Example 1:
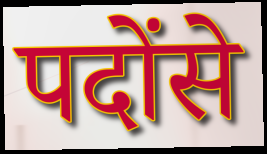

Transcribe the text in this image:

पदोंसे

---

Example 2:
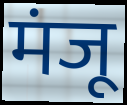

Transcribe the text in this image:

मंजू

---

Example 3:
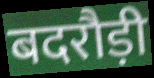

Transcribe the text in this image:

बदरौड़ी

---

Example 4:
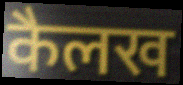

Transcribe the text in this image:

कैलख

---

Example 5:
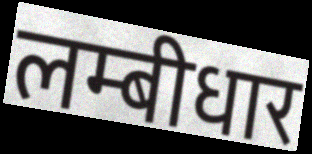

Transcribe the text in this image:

लम्बीधार